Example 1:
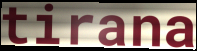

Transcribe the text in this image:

tirana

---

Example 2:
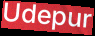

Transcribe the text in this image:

Udepur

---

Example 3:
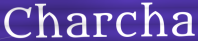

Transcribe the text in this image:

Charcha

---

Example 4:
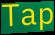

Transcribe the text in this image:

Tap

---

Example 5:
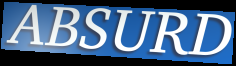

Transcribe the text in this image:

ABSURD